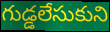
గుడ్డలేసుకుని